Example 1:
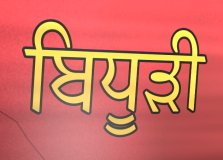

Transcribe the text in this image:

ਬਿਧੂੜੀ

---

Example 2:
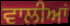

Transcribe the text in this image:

ਵਾਲੀਆਂ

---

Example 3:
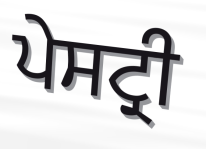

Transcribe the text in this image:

ਪੇਸਟ੍ਰੀ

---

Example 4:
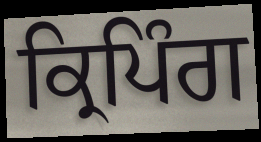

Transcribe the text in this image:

ਕ੍ਰਿਪਿੰਗ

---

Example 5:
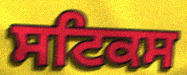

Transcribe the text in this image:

ਸਟਿਕਸ